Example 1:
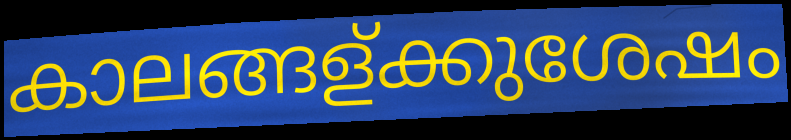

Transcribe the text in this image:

കാലങ്ങള്ക്കുശേഷം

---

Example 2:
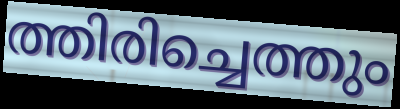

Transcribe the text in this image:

ത്തിരിച്ചെത്തും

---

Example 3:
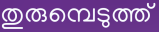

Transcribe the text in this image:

തുരുമ്പെടുത്ത്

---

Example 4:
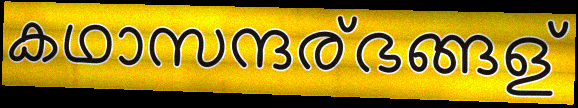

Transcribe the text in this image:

കഥാസന്ദര്ഭങ്ങള്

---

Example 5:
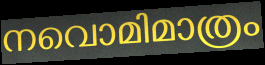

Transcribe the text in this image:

നവൊമിമാത്രം